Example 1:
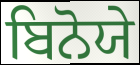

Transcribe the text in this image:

ਬਿਨੋਯੇ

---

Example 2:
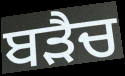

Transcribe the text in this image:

ਬੜੈਚ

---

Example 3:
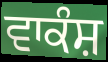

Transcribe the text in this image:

ਵਾਕੰਸ਼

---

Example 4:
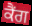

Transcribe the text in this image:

ਕੈਂਗ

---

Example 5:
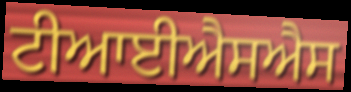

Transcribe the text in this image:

ਟੀਆਈਐਸਐਸ